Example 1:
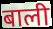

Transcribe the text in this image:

बाली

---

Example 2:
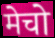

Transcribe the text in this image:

मेचो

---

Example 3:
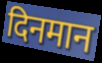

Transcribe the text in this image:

दिनमान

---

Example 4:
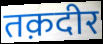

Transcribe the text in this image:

तक़दीर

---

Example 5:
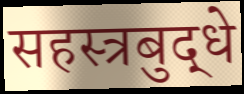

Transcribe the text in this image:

सहस्त्रबुद्धे